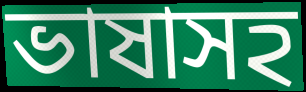
ভাষাসহ